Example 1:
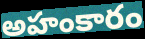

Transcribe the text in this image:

అహంకారం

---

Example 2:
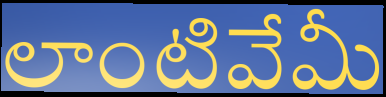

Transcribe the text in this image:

లాంటివేమీ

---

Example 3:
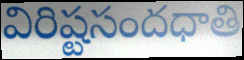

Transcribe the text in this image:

విరిష్టసందధాతి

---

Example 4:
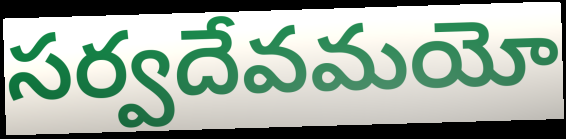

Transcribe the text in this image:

సర్వదేవమయో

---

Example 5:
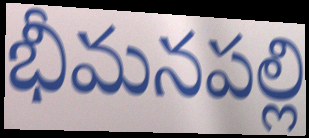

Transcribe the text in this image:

భీమనపల్లి